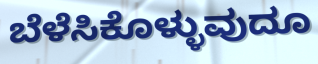
ಬೆಳೆಸಿಕೊಳ್ಳುವುದೂ